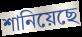
শানিয়েছে